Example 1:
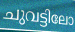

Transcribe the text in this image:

ചുവട്ടിലോ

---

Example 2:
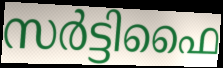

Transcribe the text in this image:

സർട്ടിഫൈ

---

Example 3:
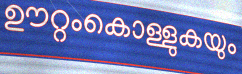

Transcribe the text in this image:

ഊറ്റംകൊള്ളുകയും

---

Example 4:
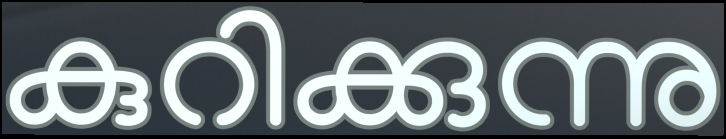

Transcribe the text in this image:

കുറിക്കുന്നു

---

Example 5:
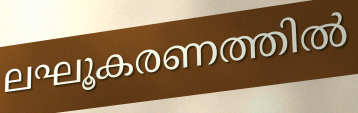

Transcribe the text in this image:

ലഘൂകരണത്തിൽ